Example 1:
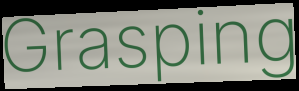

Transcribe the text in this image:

Grasping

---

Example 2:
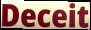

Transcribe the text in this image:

Deceit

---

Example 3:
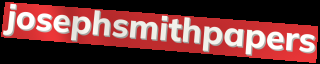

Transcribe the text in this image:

josephsmithpapers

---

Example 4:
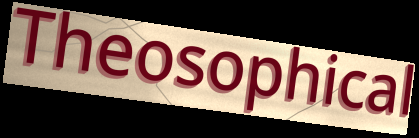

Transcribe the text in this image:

Theosophical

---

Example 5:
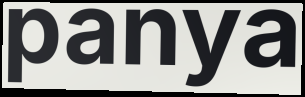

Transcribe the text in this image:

panya